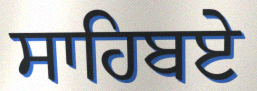
ਸਾਹਿਬਏ